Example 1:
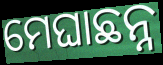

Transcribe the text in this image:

ମେଘାଛନ୍ନ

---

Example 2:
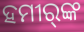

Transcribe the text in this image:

ହମୀର୍‍ଙ୍କ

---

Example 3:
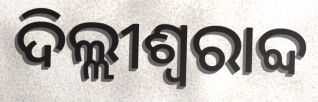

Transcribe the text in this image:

ଦିଲ୍ଲୀଶ୍ୱରାବ୍ଦ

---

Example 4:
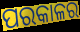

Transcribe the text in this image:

ପରକାଳର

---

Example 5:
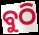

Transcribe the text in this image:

ବୁଠି